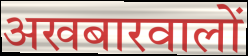
अखबारवालों